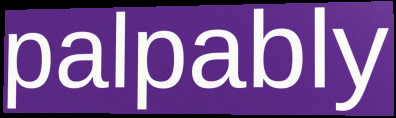
palpably